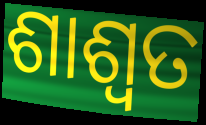
ଶାଶ୍ୱତ